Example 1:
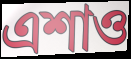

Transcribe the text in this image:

এশাও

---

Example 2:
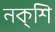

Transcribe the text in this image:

নক্‌শি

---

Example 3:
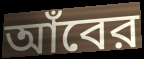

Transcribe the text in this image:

আঁবের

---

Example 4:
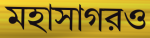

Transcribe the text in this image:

মহাসাগরও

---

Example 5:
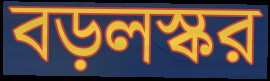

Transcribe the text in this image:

বড়লস্কর